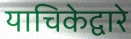
याचिकेद्वारे